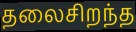
தலைசிறந்த